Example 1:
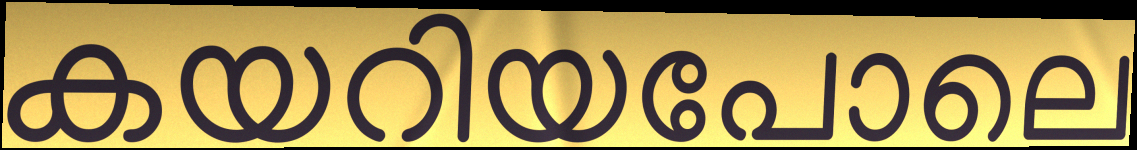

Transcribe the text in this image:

കയറിയപോലെ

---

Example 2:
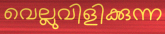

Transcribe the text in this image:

വെല്ലുവിളിക്കുന്ന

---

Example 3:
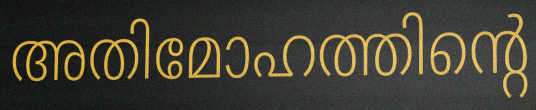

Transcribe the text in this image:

അതിമോഹത്തിന്റെ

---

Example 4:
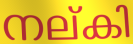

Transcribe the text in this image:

നല്‌കി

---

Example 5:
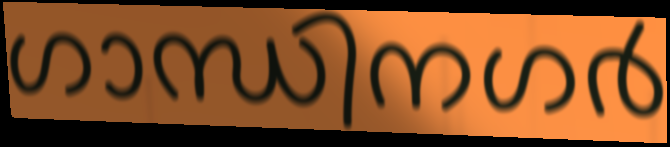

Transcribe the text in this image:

ഗാന്ധിനഗർ